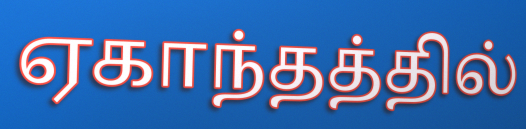
ஏகாந்தத்தில்